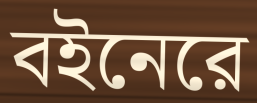
বইনেরে